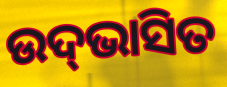
ଉଦ୍‍ଭାସିତ